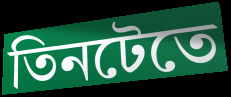
তিনটেতে